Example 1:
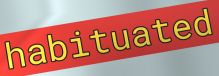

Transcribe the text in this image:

habituated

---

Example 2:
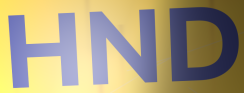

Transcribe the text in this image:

HND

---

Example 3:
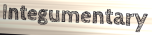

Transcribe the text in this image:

Integumentary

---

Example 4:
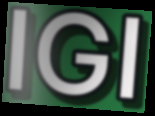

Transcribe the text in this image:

IGI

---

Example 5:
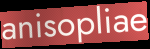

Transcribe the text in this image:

anisopliae